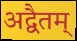
अद्वैतम्